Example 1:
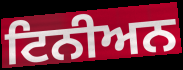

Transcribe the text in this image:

ਟਿਨੀਅਨ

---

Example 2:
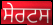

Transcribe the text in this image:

ਸੇਰਟਸ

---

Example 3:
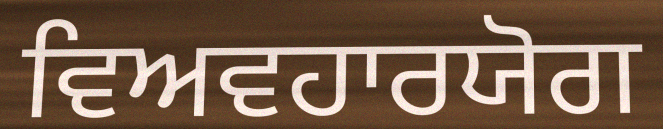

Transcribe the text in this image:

ਵਿਅਵਹਾਰਯੋਗ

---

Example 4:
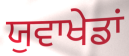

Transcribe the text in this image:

ਯੁਵਾਖੇਡਾਂ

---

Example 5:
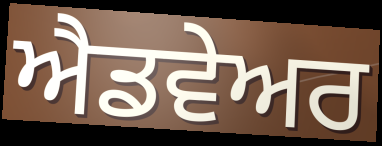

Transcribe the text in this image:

ਐਡਵੇਅਰ